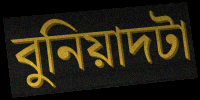
বুনিয়াদটা